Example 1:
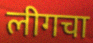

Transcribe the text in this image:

लीगचा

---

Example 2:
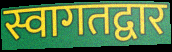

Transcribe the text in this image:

स्वागतद्वार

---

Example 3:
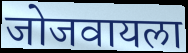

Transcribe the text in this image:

जोजवायला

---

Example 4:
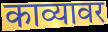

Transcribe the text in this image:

काव्यावर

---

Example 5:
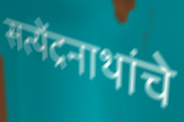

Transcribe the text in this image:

सत्येंद्रनाथांचे